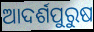
ଆଦର୍ଶପୁରୁଷ